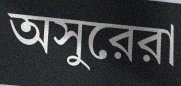
অসুরেরা